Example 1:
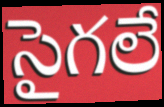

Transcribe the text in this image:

సైగలే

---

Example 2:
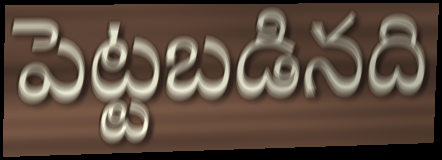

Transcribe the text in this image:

పెట్టబడినది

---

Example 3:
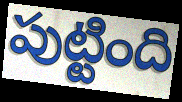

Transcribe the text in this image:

పుట్టింది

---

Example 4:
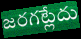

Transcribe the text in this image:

జరగట్లేదు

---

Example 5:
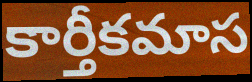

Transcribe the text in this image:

కార్తీకమాస